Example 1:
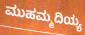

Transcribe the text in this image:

ಮುಹಮ್ಮದಿಯ್ಯ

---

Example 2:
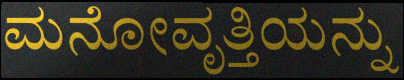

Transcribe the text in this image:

ಮನೋವೃತ್ತಿಯನ್ನು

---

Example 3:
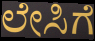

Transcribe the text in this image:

ಲೇಸಿಗೆ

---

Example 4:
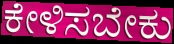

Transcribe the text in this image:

ಕೇಳಿಸಬೇಕು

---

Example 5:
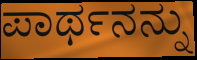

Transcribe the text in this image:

ಪಾರ್ಥನನ್ನು